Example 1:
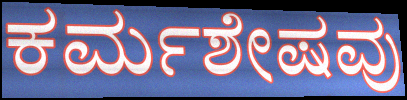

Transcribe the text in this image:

ಕರ್ಮಶೇಷವು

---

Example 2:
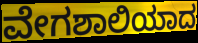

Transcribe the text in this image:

ವೇಗಶಾಲಿಯಾದ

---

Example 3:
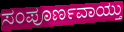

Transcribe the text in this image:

ಸಂಪೂರ್ಣವಾಯ್ತು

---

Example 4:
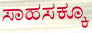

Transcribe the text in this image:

ಸಾಹಸಕ್ಕೂ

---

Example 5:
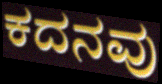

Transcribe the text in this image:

ಕದನವು